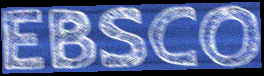
EBSCO